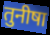
तुनीषा